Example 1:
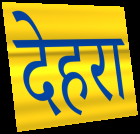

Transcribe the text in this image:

देहरा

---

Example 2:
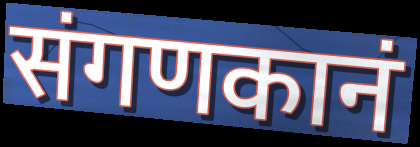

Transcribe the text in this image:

संगणकानं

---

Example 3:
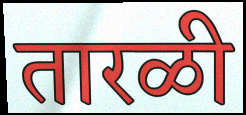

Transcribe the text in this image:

तारळी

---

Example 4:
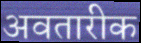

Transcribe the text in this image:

अवतारीक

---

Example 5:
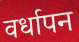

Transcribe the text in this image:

वर्धापन